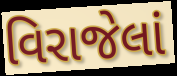
વિરાજેલાં